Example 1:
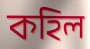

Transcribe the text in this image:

কহিল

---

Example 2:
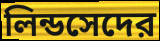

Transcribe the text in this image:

লিন্ডসেদের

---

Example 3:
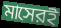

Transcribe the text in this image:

মাসেরই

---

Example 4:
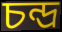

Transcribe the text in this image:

চন্দ্র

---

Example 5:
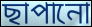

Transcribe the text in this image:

ছাপানো